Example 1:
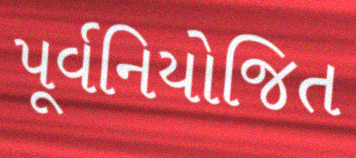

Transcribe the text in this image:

પૂર્વનિયોજિત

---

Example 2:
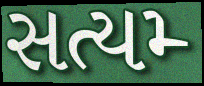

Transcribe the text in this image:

સત્યમ્‍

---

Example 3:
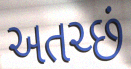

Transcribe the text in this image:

અતચ્છં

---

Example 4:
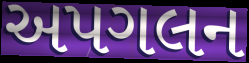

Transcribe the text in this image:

અપગલન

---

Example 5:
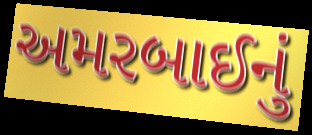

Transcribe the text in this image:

અમરબાઈનું